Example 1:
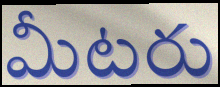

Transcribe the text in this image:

మీటరు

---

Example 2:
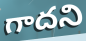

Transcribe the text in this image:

గాదని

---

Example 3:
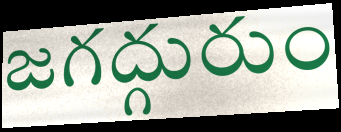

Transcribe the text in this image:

జగద్గురుం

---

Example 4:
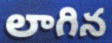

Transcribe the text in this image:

లాగిన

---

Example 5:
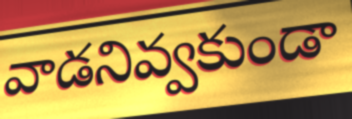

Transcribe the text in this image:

వాడనివ్వకుండా